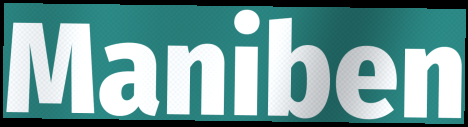
Maniben